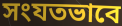
সংযতভাবে